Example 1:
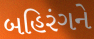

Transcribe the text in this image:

બહિરંગને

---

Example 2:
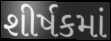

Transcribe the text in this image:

શીર્ષકમાં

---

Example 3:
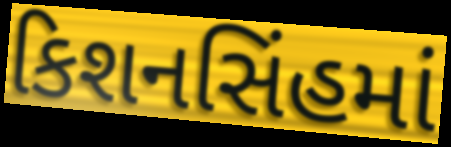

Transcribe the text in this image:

કિશનસિંહમાં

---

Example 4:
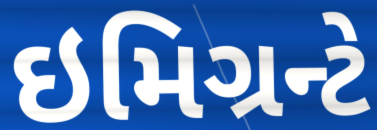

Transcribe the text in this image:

ઇમિગ્રન્ટે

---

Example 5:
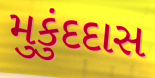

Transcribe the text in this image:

મુકુંદદાસ